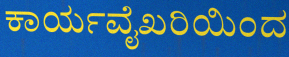
ಕಾರ್ಯವೈಖರಿಯಿಂದ